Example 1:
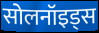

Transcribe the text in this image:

सोलनॉइड्स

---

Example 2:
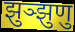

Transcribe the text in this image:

झुञ्झुणु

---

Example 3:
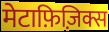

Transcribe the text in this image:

मेटाफ़िज़िक्स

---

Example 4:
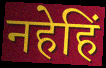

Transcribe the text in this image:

नहेहिं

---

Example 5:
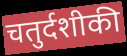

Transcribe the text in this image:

चतुर्दशीकी